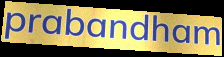
prabandham